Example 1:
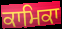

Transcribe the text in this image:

ਕਾਮਿਕਾ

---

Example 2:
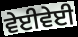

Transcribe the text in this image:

ਵੇਈਵੇਈ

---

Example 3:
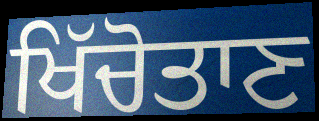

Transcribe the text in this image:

ਖਿੱਚੋਤਾਣ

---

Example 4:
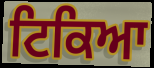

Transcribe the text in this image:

ਟਿਕਿਆ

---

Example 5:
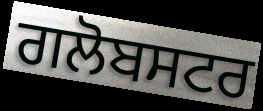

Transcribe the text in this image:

ਗਲੋਬਸਟਰ